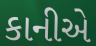
કાનીએ